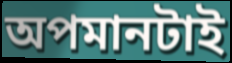
অপমানটাই